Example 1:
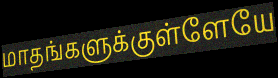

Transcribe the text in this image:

மாதங்களுக்குள்ளேயே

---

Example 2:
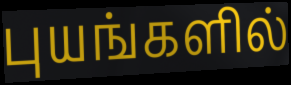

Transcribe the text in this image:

புயங்களில்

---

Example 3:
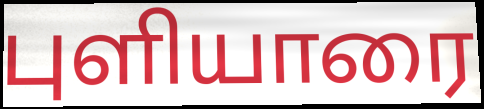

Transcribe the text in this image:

புளியாரை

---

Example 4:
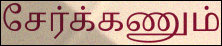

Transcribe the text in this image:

சேர்க்கணும்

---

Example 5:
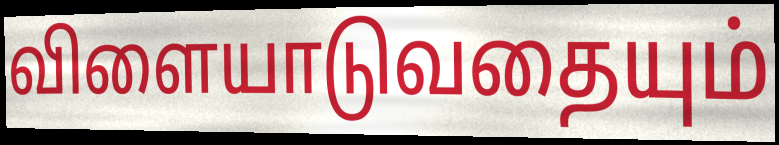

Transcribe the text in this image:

விளையாடுவதையும்